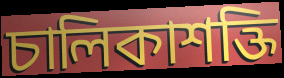
চালিকাশক্তি